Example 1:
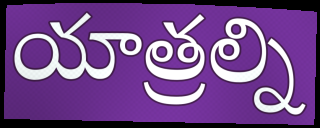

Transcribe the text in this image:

యాత్రల్ని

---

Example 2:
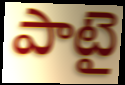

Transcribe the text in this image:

పాటై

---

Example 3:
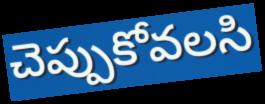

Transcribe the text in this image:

చెప్పుకోవలసి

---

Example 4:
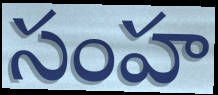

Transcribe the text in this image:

సంహ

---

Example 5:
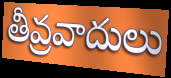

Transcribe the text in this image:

తీవ్రవాదులు